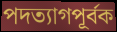
পদত্যাগপূর্বক